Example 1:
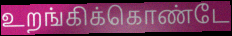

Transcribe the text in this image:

உறங்கிக்கொண்டே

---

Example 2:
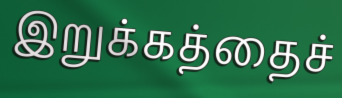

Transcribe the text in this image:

இறுக்கத்தைச்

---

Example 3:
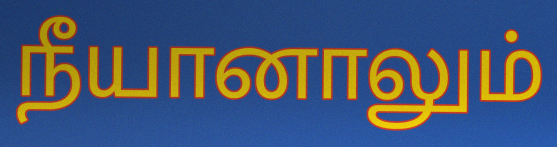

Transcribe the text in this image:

நீயானாலும்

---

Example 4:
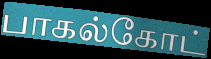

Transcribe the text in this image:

பாகல்கோட்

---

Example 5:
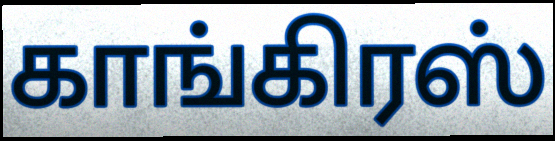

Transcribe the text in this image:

காங்கிரஸ்